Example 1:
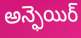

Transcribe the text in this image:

అన్ఫెయిర్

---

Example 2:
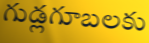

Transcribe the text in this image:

గుడ్లగూబలకు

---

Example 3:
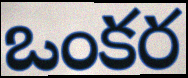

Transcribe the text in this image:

ఒంకర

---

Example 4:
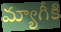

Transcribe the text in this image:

మ్యాగీకి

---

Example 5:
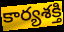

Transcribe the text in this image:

కార్యశక్తి